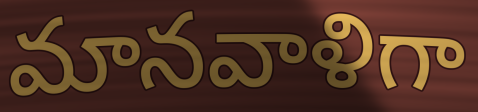
మానవాళిగా